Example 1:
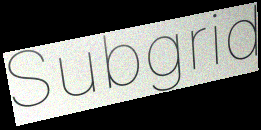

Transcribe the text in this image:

Subgrid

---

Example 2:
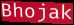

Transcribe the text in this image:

Bhojak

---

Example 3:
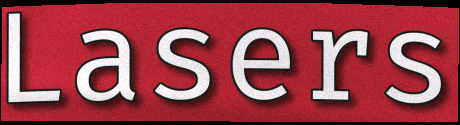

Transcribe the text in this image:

Lasers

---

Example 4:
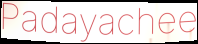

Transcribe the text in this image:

Padayachee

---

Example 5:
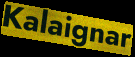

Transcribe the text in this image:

Kalaignar